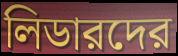
লিডারদের